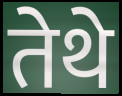
तेथे